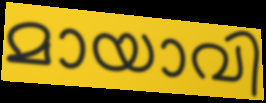
മായാവി